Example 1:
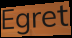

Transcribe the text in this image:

Egret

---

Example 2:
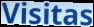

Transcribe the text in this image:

Visitas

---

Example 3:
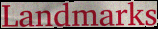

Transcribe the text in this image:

Landmarks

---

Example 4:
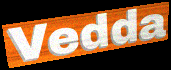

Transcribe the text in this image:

Vedda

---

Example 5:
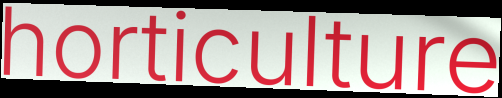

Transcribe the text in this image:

horticulture